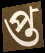
প্ত